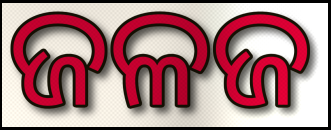
ଜଳଜ